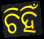
ଚିହିଁ